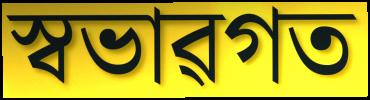
স্বভাৱগত